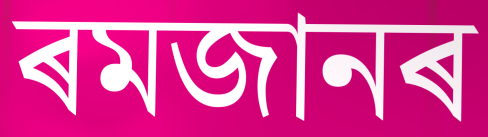
ৰমজানৰ